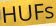
HUFs